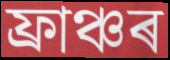
ফ্ৰাঞ্চৰ